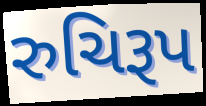
રુચિરૂપ